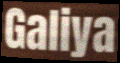
Galiya